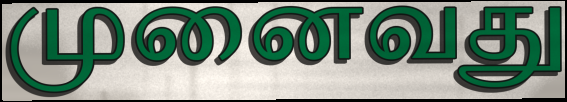
முனைவது